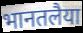
भानतलैया